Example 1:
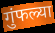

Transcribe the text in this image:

गुंफल्या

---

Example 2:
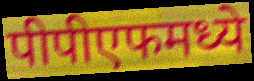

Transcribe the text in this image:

पीपीएफमध्ये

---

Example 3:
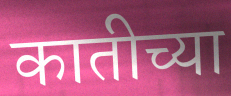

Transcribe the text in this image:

कातीच्या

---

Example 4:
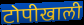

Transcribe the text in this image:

टोपीखाली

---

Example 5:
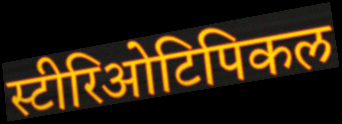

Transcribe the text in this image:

स्टीरिओटिपिकल